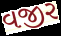
વજીર